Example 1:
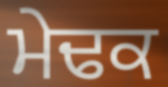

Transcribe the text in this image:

ਮੇਢਕ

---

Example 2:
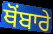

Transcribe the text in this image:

ਥੋਂਬਾਰੇ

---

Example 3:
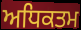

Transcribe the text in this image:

ਅਧਿਕਤਮ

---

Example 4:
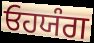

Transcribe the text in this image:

ਓਹਯੰਗ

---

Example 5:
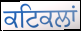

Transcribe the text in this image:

ਕਟਿਕਲਾਂ